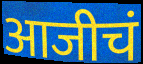
आजीचं